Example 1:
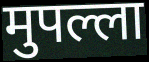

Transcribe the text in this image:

मुपल्ला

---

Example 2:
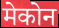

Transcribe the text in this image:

मेकोन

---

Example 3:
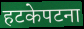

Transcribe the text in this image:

हटकेपटना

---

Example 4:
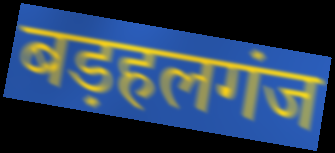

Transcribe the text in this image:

बड़हलगंज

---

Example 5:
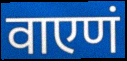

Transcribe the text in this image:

वाएणं